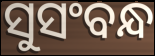
ସୁସଂବନ୍ଧ